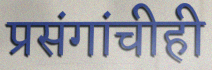
प्रसंगांचीही